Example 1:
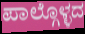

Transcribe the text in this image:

ಪಾಲ್ಗೊಳ್ಳದ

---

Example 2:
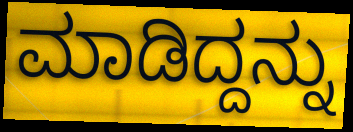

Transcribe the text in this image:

ಮಾಡಿದ್ದನ್ನು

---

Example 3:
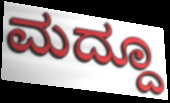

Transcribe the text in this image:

ಮದ್ದೂ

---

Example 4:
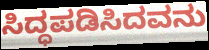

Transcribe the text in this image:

ಸಿದ್ಧಪಡಿಸಿದವನು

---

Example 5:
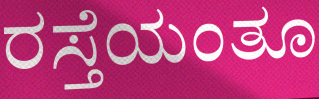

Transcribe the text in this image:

ರಸ್ತೆಯಂತೂ